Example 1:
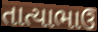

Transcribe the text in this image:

તાત્યાભાઉ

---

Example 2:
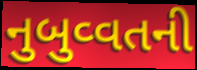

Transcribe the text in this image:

નુબુવ્વતની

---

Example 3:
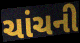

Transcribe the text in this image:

ચાંચની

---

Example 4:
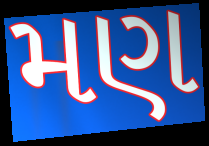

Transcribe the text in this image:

મણ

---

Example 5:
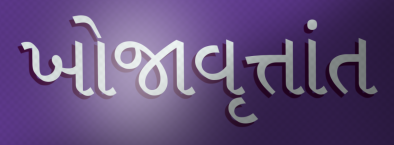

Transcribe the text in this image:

ખોજાવૃત્તાંત